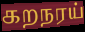
கறநரய்